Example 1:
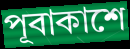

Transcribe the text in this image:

পূবাকাশে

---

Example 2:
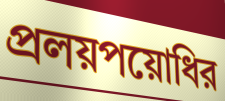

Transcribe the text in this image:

প্রলয়পয়োধির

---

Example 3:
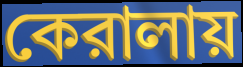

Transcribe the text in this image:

কেরালায়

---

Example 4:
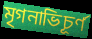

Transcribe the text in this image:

মৃগনাভিচূর্ণ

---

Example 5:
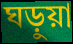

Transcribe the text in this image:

ঘড়ুয়া